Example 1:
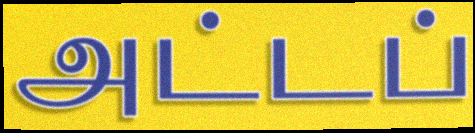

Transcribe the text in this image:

அட்டப்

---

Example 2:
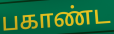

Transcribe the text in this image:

பகாண்ட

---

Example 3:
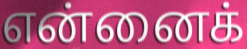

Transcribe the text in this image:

என்னைக்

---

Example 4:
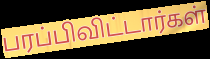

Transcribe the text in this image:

பரப்பிவிட்டார்கள்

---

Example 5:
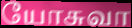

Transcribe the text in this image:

யோசுவா